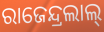
ରାଜେନ୍ଦ୍ରଲାଲ୍